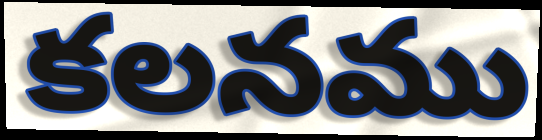
కలనము